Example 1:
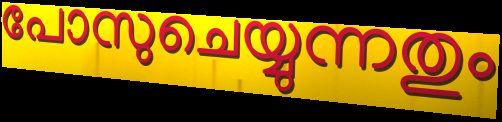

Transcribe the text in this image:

പോസുചെയ്യുന്നതും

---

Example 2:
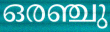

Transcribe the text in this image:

ഒരഞ്ചു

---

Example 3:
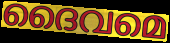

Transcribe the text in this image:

ദൈവമെ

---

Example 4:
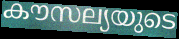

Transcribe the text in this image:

കൗസല്യയുടെ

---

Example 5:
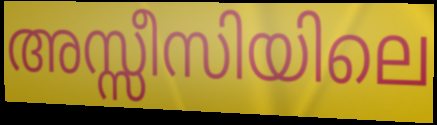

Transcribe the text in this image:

അസ്സീസിയിലെ